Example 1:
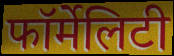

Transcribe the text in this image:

फॉर्मेलिटी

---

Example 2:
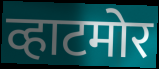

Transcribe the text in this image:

व्हाटमोर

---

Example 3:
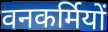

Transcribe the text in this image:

वनकर्मियों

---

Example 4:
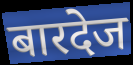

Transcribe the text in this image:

बारदेज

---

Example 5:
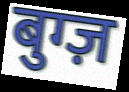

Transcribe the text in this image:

बुग्ज़